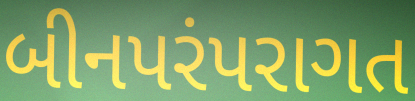
બીનપરંપરાગત